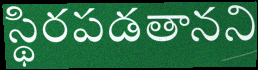
స్థిరపడతానని